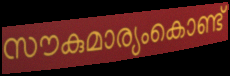
സൗകുമാര്യംകൊണ്ട്